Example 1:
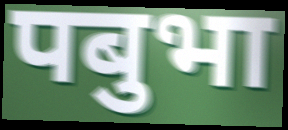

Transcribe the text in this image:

पबुभा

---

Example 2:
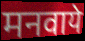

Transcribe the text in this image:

मनवाये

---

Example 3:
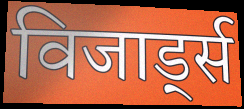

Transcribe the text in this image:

विजार्ड्स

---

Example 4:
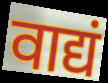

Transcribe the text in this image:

वाद्यं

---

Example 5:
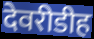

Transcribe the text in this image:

देवरीडीह